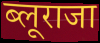
ब्लूराजा